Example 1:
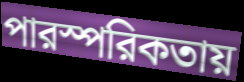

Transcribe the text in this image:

পারস্পরিকতায়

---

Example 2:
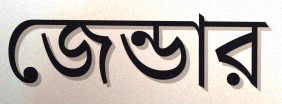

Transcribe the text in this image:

জেন্ডার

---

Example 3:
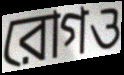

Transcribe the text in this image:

রোগও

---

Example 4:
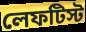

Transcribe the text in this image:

লেফটিস্ট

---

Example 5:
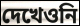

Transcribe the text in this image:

দেখেওনি